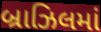
બ્રાઝિલમાં